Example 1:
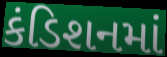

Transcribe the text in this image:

કંડિશનમાં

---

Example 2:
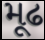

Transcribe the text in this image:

મૂઢ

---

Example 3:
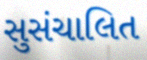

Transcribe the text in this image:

સુસંચાલિત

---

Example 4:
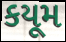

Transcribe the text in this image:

કયૂમ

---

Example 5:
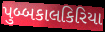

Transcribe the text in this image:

પુબ્બકાલકિરિયા